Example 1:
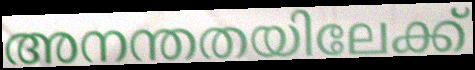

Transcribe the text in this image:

അനന്തതയിലേക്ക്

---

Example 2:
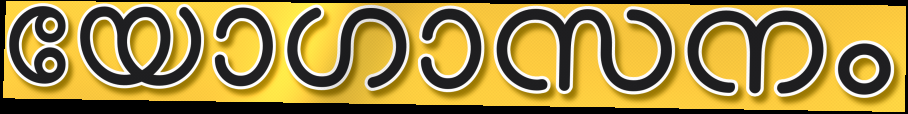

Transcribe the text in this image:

യോഗാസനം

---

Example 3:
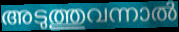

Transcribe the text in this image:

അടുത്തുവന്നാൽ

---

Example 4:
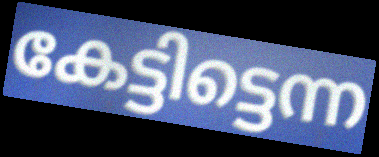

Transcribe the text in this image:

കേട്ടിട്ടെന്ന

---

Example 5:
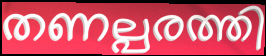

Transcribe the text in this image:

തണല്പരത്തി